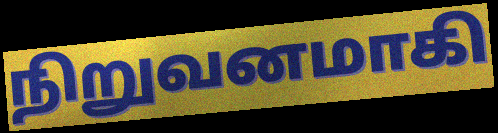
நிறுவனமாகி